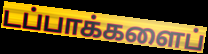
டப்பாக்களைப்